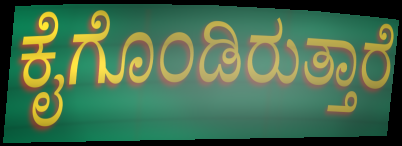
ಕೈಗೊಂಡಿರುತ್ತಾರೆ